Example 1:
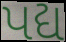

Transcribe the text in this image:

પદ્ય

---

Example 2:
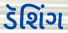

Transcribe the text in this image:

ડૅશિંગ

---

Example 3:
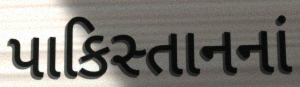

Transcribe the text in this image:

પાકિસ્તાનનાં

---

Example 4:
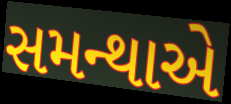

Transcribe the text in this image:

સમન્થાએ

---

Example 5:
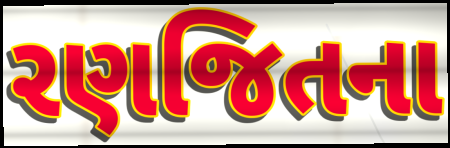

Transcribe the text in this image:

રણજિતના